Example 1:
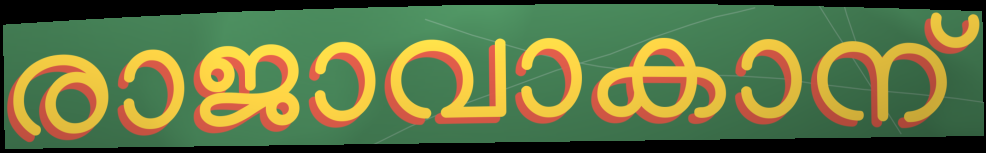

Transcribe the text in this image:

രാജാവാകാന്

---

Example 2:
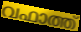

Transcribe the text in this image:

വഫാത്ത്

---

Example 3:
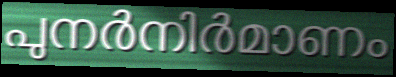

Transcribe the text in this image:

പുനർനിർമാണം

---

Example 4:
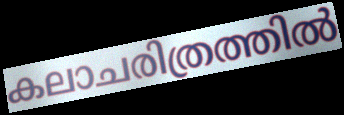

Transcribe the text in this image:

കലാചരിത്രത്തിൽ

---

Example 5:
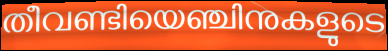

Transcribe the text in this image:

തീവണ്ടിയെഞ്ചിനുകളുടെ